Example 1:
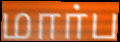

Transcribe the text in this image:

மார்ப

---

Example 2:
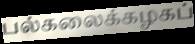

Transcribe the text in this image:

பல்கலைக்கழகப்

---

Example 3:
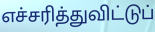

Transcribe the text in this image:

எச்சரித்துவிட்டுப்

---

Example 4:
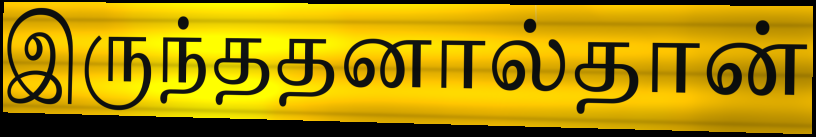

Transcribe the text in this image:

இருந்ததனால்தான்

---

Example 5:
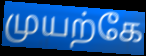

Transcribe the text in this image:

முயற்கே